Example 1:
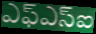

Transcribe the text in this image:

ఎఫ్ఎస్ఐ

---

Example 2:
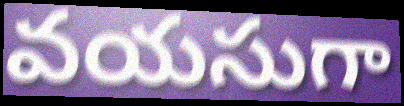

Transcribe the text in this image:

వయసుగా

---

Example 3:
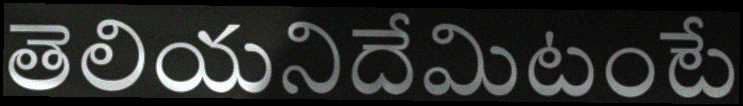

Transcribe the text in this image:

తెలియనిదేమిటంటే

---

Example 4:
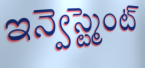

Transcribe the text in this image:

ఇన్వెస్ట్మెంట్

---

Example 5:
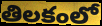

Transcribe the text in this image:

తిలకంలో